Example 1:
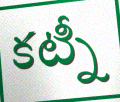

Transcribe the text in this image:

కట్నీ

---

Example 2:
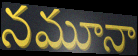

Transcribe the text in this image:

నమూనా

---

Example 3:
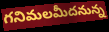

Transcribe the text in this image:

గనిమలమీదనున్న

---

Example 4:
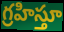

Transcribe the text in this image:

గ్రహిస్తూ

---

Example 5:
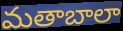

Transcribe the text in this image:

మతాబాలా